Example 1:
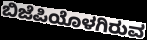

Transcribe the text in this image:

ಬಿಜೆಪಿಯೊಳಗಿರುವ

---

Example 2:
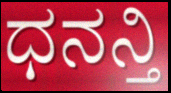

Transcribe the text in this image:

ಧನನ್ತಿ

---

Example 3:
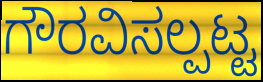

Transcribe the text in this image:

ಗೌರವಿಸಲ್ಪಟ್ಟ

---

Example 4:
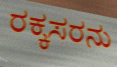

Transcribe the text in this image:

ರಕ್ಕಸರನು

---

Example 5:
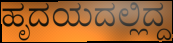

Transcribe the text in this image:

ಹೃದಯದಲ್ಲಿದ್ದ